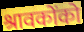
श्रावकोंको